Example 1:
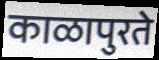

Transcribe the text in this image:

काळापुरते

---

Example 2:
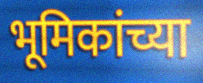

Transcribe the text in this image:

भूमिकांच्या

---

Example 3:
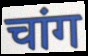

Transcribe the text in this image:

चांग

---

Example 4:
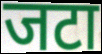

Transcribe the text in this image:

जटा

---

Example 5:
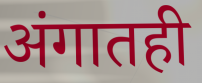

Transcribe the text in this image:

अंगातही